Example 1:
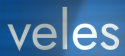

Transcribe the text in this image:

veles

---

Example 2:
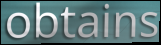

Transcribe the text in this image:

obtains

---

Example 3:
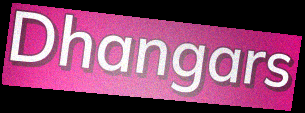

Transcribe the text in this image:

Dhangars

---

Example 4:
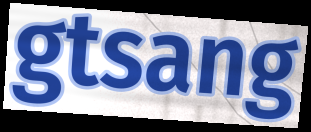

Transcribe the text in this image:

gtsang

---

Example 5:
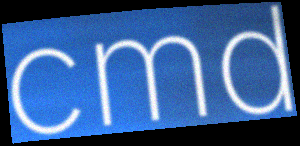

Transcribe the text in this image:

cmd